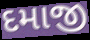
દમાજી